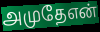
அமுதேஎன்